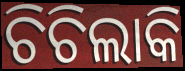
ଚିଚିଲାକି